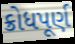
ક્રોધપૂર્ણ